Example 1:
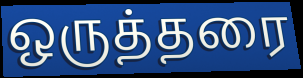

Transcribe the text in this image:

ஒருத்தரை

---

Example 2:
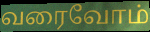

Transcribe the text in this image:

வரைவோம்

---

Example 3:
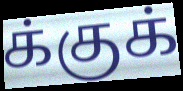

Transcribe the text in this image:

க்குக்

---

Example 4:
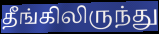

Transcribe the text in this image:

தீங்கிலிருந்து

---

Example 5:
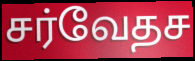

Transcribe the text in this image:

சர்வேதச